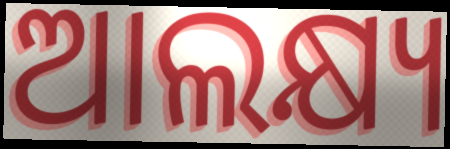
ଆଲକ୍ଷ୍ୟ